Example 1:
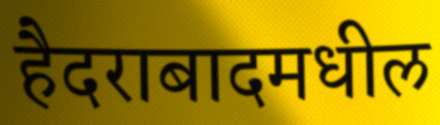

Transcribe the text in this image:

हैदराबादमधील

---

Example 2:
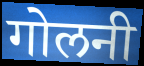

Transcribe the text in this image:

गोलनी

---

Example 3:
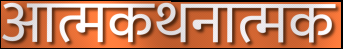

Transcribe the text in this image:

आत्मकथनात्मक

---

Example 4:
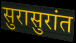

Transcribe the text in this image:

सुरासुरांत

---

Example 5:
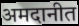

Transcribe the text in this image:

अमदानीत